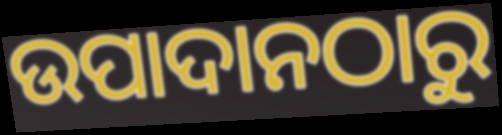
ଉପାଦାନଠାରୁ